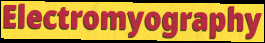
Electromyography